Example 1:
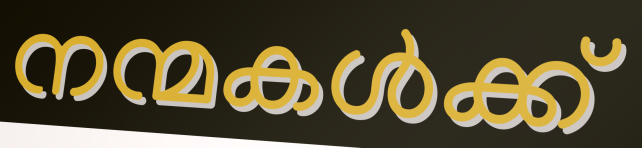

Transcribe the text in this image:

നന്മകൾക്ക്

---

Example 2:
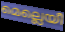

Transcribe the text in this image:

മെല്ലെയീ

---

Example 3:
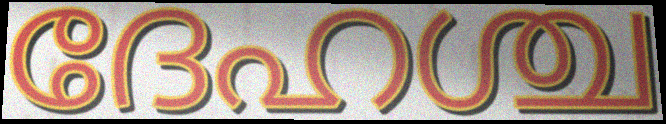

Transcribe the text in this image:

ദേഹശ്ച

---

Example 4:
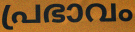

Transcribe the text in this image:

പ്രഭാവം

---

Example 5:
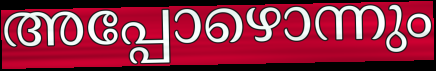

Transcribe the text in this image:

അപ്പോഴൊന്നും